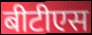
बीटीएस